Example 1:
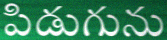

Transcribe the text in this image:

పిడుగును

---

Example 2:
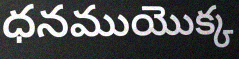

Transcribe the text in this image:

ధనముయొక్క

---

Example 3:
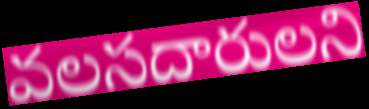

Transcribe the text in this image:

వలసదారులని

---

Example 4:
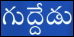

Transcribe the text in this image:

గుద్దేడు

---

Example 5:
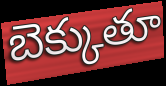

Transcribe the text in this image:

బెక్కుతూ